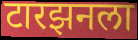
टारझनला